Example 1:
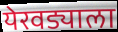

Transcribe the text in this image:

येरवड्याला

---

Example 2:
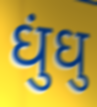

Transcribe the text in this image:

धुंधु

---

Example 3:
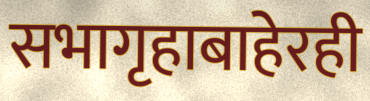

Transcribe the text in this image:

सभागृहाबाहेरही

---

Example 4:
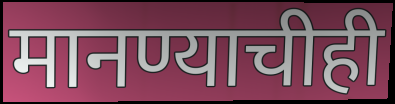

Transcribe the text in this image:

मानण्याचीही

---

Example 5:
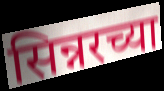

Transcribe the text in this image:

सिन्नरच्या